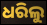
ଧରିଲୁ